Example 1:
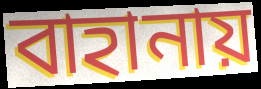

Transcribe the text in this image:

বাহানায়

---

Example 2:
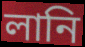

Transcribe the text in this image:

লানি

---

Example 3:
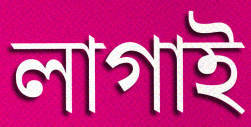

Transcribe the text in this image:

লাগাই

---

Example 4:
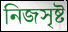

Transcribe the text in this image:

নিজসৃষ্ট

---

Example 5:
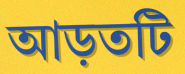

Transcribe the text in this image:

আড়তটি